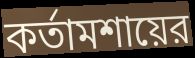
কর্তামশায়ের